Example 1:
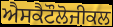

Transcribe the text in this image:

ਐਸਕੈਟੌਲੋਜੀਕਲ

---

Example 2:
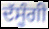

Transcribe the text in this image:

ਦੱਸੂੰਗੀ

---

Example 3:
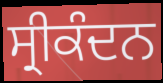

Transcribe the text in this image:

ਸ੍ਰੀਕੰਦਨ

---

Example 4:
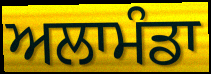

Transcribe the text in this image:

ਅਲਾਮੰਡਾ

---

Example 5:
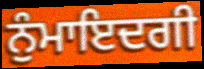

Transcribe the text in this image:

ਨੁੰਮਾਇਦਗੀ